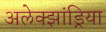
अलेक्झांड्रिया